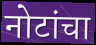
नोटांचा